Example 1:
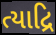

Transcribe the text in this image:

ત્યાદ્રિ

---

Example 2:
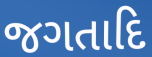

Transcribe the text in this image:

જગતાદિ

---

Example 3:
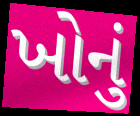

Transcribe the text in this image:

ખોનું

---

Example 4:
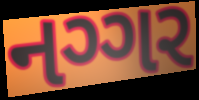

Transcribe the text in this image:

નગ્ગર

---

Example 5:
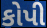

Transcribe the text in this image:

કોપી